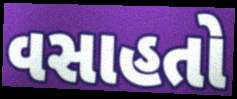
વસાહતો